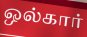
ஒல்கார்